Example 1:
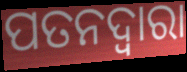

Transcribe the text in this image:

ପତନଦ୍ଵାରା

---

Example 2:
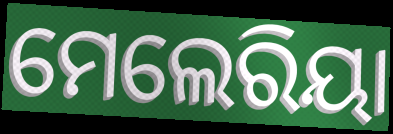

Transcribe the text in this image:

ମେଲେରିୟା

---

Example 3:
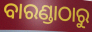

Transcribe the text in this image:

ବାରଣ୍ଡାଠାରୁ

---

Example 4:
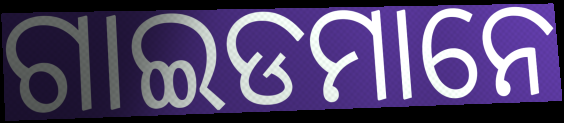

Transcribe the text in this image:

ଗାଇଡମାନେ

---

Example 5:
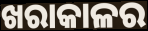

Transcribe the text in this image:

ଖରାକାଳର